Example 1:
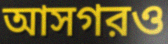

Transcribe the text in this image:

আসগরও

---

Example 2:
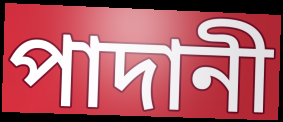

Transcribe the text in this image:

পাদানী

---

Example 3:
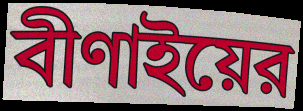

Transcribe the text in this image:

বীণাইয়ের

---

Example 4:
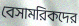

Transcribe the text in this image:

বেসামরিকদের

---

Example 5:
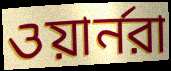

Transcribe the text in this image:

ওয়ার্নরা